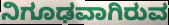
ನಿಗೂಢವಾಗಿರುವ